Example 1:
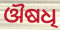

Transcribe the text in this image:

ଔଷଧି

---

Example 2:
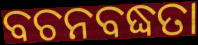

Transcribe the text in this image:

ବଚନବଦ୍ଧତା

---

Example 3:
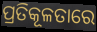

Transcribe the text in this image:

ପ୍ରତିକୂଳତାରେ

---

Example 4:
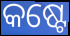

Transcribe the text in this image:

କଷ୍ଟେ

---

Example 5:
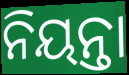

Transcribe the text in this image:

ନିୟନ୍ତା